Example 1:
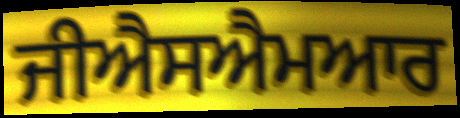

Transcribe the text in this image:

ਜੀਐਸਐਮਆਰ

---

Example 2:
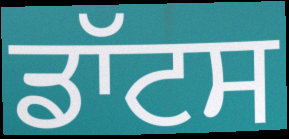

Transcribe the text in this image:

ਡਾੱਟਸ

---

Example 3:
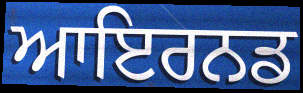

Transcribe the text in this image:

ਆਇਰਨਡ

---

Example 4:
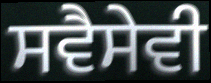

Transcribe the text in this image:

ਸਵੈਸੇਵੀ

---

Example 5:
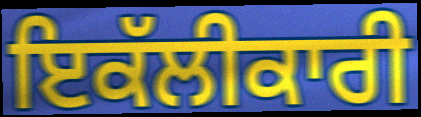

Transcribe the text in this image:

ਇਕੱਲੀਕਾਰੀ